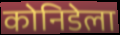
कोनिडेला